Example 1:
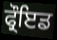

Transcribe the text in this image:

ਫ੍ਰੌਇਡ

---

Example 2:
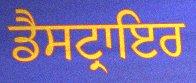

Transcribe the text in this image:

ਡੈਸਟ੍ਰਾਇਰ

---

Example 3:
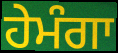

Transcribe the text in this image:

ਹੇਮੰਗਾ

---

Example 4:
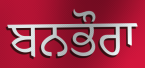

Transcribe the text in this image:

ਬਨਭੌਰਾ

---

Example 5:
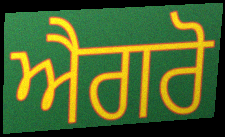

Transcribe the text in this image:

ਐਗਰੋ